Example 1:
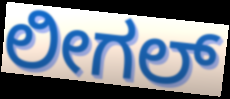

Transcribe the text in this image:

ಲೀಗಲ್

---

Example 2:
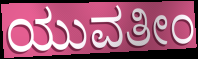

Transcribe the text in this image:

ಯುವತೀಂ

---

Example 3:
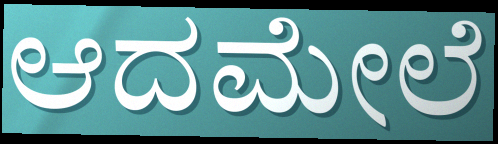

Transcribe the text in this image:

ಆದಮೇಲೆ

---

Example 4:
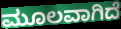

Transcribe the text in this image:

ಮೂಲವಾಗಿದೆ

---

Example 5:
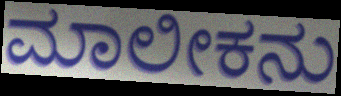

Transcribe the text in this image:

ಮಾಲೀಕನು